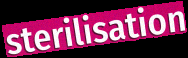
sterilisation